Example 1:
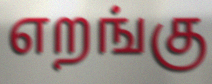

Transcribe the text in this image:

எறங்கு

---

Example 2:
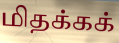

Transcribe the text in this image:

மிதக்கக்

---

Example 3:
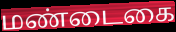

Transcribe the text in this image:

மண்டைகை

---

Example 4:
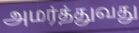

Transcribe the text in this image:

அமர்த்துவது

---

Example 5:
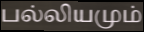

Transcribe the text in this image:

பல்லியமும்